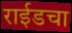
राईडचा